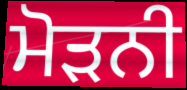
ਮੋੜਨੀ